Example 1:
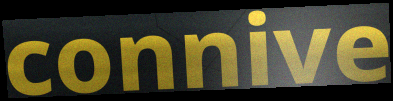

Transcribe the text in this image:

connive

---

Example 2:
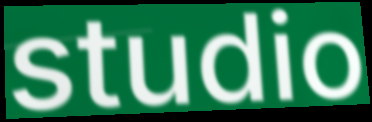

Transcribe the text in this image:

studio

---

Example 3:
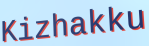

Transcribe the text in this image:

Kizhakku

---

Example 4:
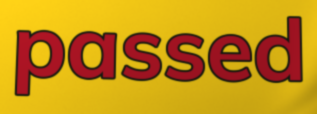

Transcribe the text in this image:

passed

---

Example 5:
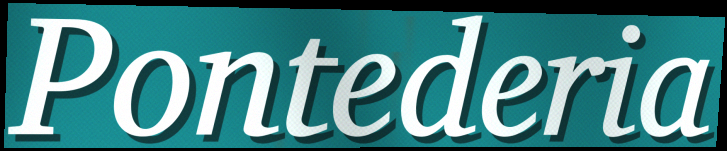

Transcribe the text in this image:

Pontederia